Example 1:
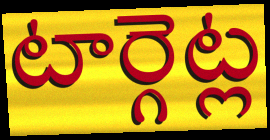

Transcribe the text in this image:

టార్గెట్ల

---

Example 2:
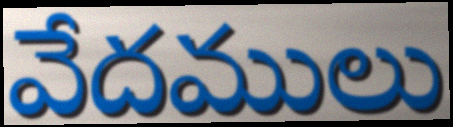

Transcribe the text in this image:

వేదములు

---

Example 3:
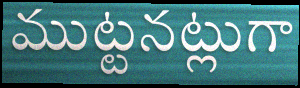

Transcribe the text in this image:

ముట్టనట్లుగా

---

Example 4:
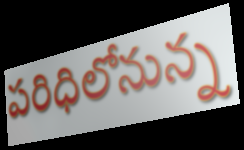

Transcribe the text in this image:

పరిధిలోనున్న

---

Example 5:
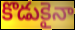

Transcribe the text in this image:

కొడుకైనా